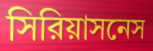
সিরিয়াসনেস